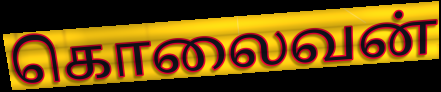
கொலைவன்